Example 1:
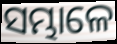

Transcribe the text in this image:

ସମ୍ଭାଳେ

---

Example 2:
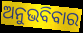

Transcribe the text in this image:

ଅନୁଭବିବାର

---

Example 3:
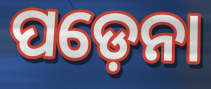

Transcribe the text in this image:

ପଡ଼େନା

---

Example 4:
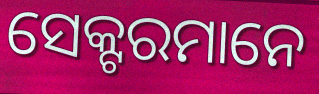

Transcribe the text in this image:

ସେକ୍ଟରମାନେ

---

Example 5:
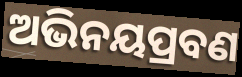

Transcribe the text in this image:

ଅଭିନୟପ୍ରବଣ